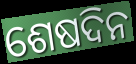
ଶେଷଦିନ